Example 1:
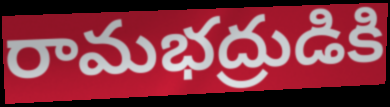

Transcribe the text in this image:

రామభద్రుడికి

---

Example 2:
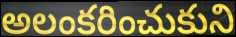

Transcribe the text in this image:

అలంకరించుకుని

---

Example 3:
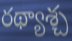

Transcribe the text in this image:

రథ్యాశ్చ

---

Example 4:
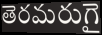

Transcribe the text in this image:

తెరమరుగై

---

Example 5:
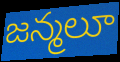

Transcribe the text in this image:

జన్మలూ